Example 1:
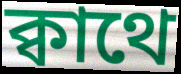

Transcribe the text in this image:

ক্বাথে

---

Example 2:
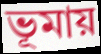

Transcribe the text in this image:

ভূমায়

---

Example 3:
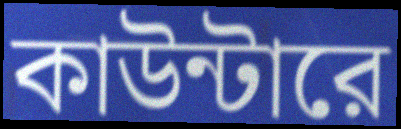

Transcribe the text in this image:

কাউন্টারে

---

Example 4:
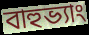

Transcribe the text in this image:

বাহুভ্যাং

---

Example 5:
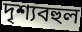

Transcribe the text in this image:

দৃশ্যবহুল